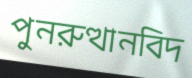
পুনরুত্থানবিদ